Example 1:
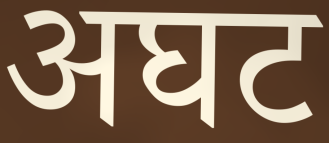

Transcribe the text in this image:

अघट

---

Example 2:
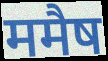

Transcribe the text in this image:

ममैष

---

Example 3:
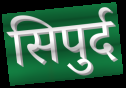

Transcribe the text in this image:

सिपुर्द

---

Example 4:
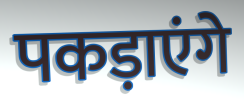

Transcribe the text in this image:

पकड़ाएंगे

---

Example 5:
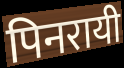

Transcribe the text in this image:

पिनरायी